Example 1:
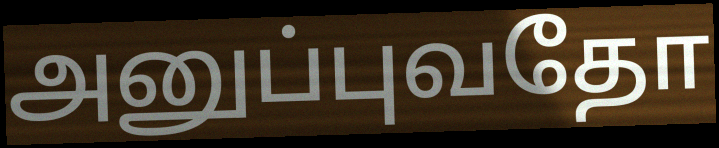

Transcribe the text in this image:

அனுப்புவதோ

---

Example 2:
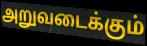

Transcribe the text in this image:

அறுவடைக்கும்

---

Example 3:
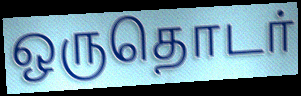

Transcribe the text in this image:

ஒருதொடர்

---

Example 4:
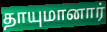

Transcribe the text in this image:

தாயுமானார்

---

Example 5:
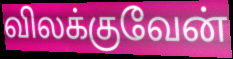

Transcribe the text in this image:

விலக்குவேன்